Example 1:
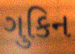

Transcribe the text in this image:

ગુકિન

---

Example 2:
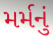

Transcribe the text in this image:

મર્મનું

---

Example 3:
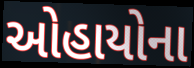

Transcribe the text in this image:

ઓહાયોના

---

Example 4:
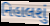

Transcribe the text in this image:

નિહાલશું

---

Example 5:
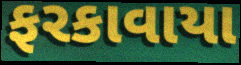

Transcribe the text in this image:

ફરકાવાયા